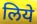
लिये